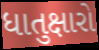
ધાતુક્ષારો